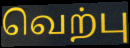
வெற்பு